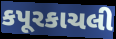
કપૂરકાચલી